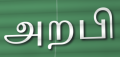
அறபி